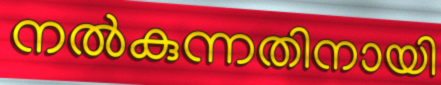
നൽകുന്നതിനായി